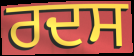
ਰਦਸ